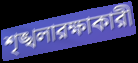
শৃঙ্খলারক্ষাকারী